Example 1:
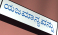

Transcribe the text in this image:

ಯಜಮಾನ್ಯವನ್ನು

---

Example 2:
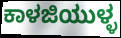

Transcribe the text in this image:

ಕಾಳಜಿಯುಳ್ಳ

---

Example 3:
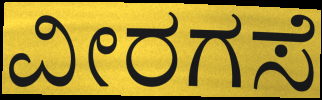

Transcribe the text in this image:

ವೀರಗಸೆ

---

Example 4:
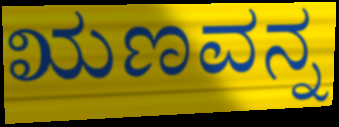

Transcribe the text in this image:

ಋಣವನ್ನ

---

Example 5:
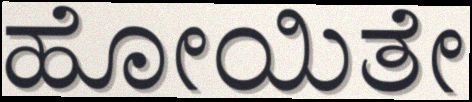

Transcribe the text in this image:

ಹೋಯಿತೇ